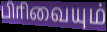
பிரிவையும்